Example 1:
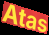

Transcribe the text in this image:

Atas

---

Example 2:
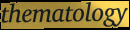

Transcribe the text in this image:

thematology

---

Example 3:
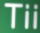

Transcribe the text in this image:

Tii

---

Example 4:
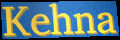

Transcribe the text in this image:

Kehna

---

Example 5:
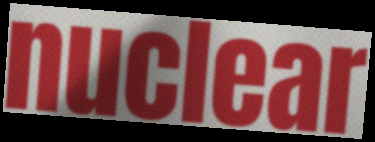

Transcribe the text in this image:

nuclear